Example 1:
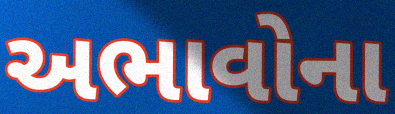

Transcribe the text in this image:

અભાવોના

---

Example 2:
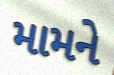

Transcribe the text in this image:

મામને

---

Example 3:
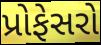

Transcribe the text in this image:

પ્રોફેસરો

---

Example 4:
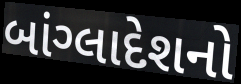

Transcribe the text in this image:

બાંગ્લાદેશનો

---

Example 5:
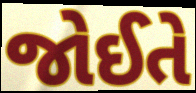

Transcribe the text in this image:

જોઈતે